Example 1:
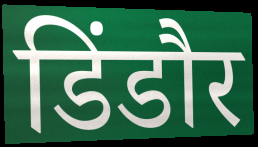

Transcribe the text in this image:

डिंडौर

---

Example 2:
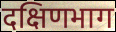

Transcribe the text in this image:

दक्षिणभाग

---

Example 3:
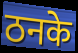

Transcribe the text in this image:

ठनके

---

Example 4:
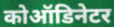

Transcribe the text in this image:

कोऑडिनेटर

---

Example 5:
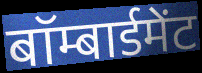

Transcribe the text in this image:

बॉम्बार्डमेंट